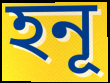
হনূ